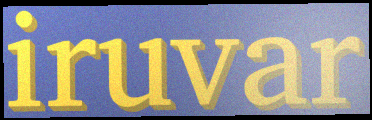
iruvar